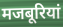
मजबूरियां